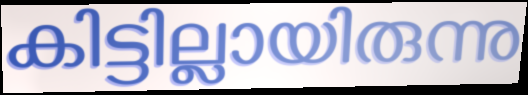
കിട്ടില്ലായിരുന്നു